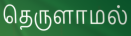
தெருளாமல்